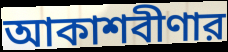
আকাশবীণার